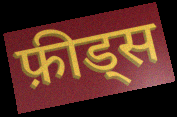
फ़ीड्स